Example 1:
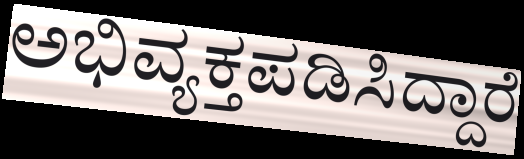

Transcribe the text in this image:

ಅಭಿವ್ಯಕ್ತಪಡಿಸಿದ್ದಾರೆ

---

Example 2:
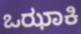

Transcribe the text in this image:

ಒಝಾಕಿ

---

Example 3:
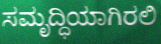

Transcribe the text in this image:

ಸಮೃದ್ಧಿಯಾಗಿರಲಿ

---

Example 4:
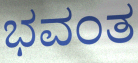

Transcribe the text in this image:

ಭವಂತ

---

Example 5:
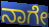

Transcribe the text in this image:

ನಾಗೇ